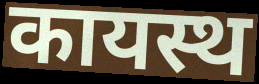
कायस्थ